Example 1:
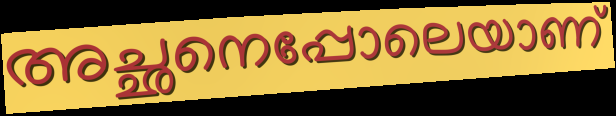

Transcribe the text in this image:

അച്ഛനെപ്പോലെയാണ്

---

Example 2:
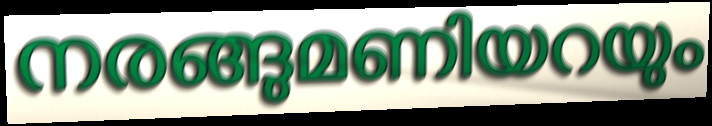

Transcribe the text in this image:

നരങ്ങുമണിയറയും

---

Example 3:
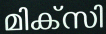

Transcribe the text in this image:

മിക്‌സി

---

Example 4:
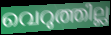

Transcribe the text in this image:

വെറുത്തില്ല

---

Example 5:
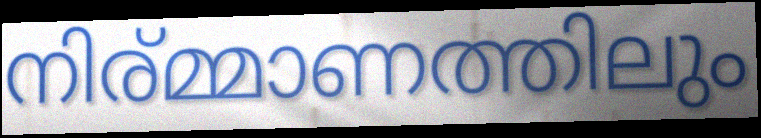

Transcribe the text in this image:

നിര്മ്മാണത്തിലും